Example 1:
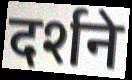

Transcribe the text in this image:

दर्शने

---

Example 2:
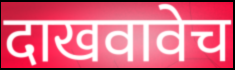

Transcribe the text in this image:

दाखवावेच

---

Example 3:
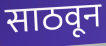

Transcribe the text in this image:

साठवून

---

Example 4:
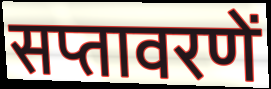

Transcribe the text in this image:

सप्तावरणें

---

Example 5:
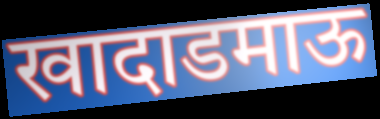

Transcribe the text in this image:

खादाडमाऊ